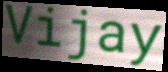
Vijay